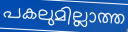
പകലുമില്ലാത്ത